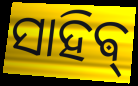
ସାହିଵ୍